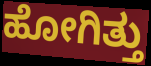
ಹೋಗಿತ್ತು